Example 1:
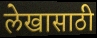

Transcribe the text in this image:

लेखासाठी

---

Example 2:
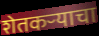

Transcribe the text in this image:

शेतकऱ्याचा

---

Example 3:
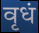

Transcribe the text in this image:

वृधं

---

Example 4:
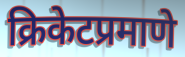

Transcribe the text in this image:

क्रिकेटप्रमाणे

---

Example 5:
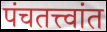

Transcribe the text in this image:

पंचतत्त्वांत